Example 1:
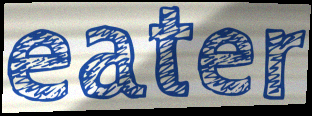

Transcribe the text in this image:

eater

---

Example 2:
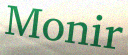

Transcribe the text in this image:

Monir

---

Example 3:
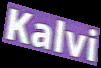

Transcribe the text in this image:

Kalvi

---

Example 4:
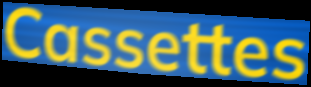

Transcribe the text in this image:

Cassettes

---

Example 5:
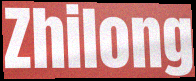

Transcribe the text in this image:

Zhilong